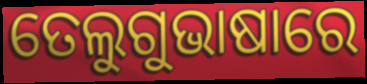
ତେଲୁଗୁଭାଷାରେ